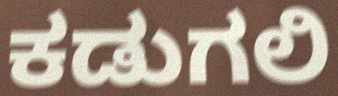
ಕಡುಗಲಿ